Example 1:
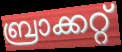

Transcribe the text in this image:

ബ്രാക്കറ്റ്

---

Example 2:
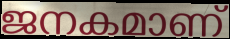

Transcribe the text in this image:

ജനകമാണ്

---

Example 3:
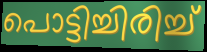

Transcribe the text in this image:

പൊട്ടിച്ചിരിച്ച്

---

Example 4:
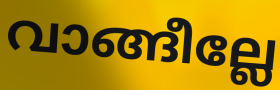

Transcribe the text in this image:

വാങ്ങീല്ലേ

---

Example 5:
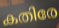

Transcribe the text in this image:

കതിരേ